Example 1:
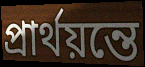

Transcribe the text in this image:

প্রার্থয়ন্তে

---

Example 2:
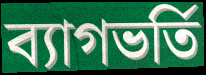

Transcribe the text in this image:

ব্যাগভর্তি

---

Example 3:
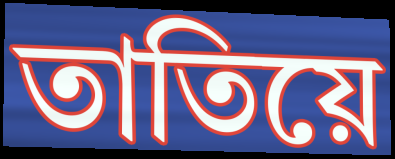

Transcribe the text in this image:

তাতিয়ে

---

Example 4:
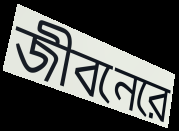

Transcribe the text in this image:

জীবনেরে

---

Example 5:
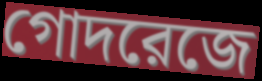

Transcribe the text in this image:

গোদরেজে